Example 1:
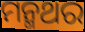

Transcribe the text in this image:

ମନ୍ମଥର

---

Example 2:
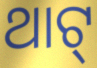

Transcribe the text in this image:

ଥାଟ୍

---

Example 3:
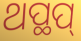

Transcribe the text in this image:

ଥପ୍ଥପ୍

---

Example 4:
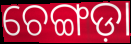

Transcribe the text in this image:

ଚେଙ୍ଗଡ଼ା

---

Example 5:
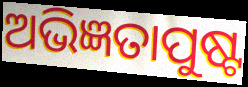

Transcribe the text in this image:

ଅଭିଜ୍ଞତାପୁଷ୍ଟ